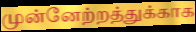
முன்னேற்றத்துக்காக